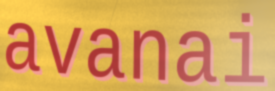
avanai